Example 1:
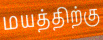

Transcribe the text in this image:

மயத்திற்கு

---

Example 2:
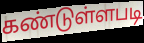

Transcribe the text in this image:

கண்டுள்ளபடி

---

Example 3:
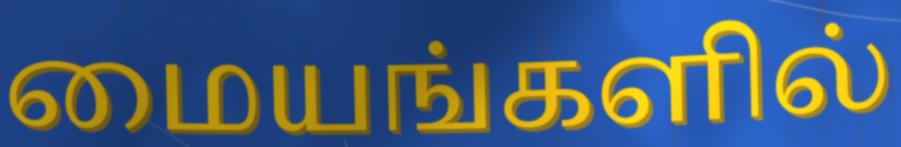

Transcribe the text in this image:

மையங்களில்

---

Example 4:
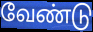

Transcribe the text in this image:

வேண்டு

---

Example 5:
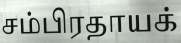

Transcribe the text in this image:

சம்பிரதாயக்